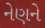
નેણને